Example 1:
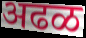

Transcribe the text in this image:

अढळ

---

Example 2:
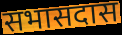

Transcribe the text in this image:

सभासदास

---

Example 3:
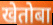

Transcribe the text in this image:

खेतोबा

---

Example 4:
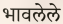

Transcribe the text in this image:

भावलेले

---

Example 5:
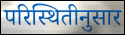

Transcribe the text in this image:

परिस्थितीनुसार